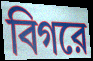
বিগরে